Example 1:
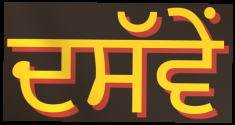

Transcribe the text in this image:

ਦਸੱਵੇਂ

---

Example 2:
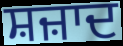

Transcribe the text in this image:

ਸ਼ਜ਼ਾਦ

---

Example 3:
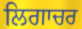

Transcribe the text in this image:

ਲਿਗਾਚਰ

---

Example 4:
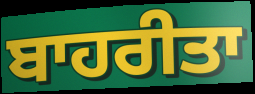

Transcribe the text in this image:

ਬਾਹਰੀਤਾ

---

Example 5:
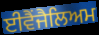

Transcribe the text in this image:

ਈਵੈਂਜੈਲਿਅਮ